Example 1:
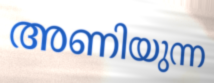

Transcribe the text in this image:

അണിയുന്ന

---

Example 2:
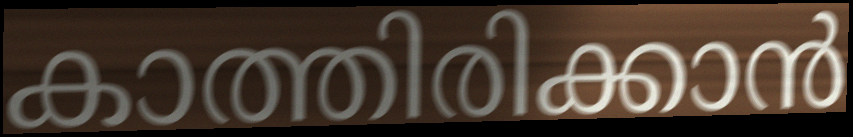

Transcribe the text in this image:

കാത്തിരിക്കാൻ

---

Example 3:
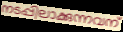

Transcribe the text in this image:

നടപ്പിലാക്കുന്നവന്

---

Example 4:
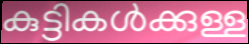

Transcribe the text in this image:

കുട്ടികൾക്കുള്ള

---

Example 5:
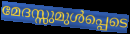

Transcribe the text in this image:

മേദസ്സുമുൾപ്പെടെ